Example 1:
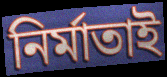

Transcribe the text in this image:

নিৰ্মাতাই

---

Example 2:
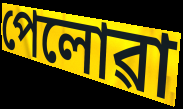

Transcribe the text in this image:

পেলোৱা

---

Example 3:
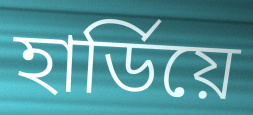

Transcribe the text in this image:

হাৰ্ডিয়ে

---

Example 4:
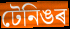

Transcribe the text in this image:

টেনিঙৰ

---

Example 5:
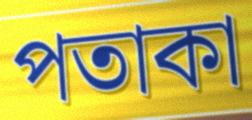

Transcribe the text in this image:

পতাকা